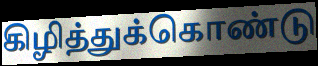
கிழித்துக்கொண்டு